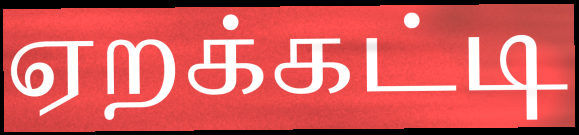
ஏறக்கட்டி